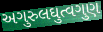
અગુરુલઘુત્વગુણ